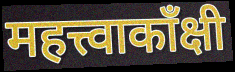
महत्त्वाकाँक्षी